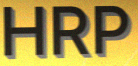
HRP